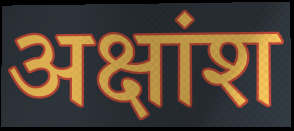
अक्षांश